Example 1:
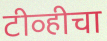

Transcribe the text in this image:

टीव्हीचा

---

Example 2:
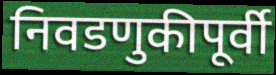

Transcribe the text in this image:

निवडणुकीपूर्वी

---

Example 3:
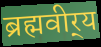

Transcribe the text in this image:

ब्रह्मवीर्य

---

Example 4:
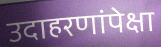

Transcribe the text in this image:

उदाहरणांपेक्षा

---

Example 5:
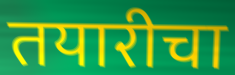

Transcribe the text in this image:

तयारीचा